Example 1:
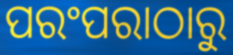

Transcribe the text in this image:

ପରଂପରାଠାରୁ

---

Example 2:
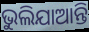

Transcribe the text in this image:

ଭୁଲିଯାଆନ୍ତି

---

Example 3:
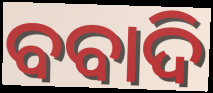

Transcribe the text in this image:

ବବାଦି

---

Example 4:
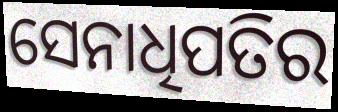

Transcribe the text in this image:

ସେନାଧିପତିର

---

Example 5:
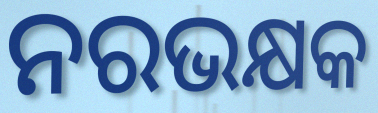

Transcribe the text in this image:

ନରଭକ୍ଷକ